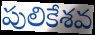
పులికేశవ